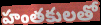
హంతకులతో